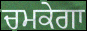
ਚਮਕੇਗਾ